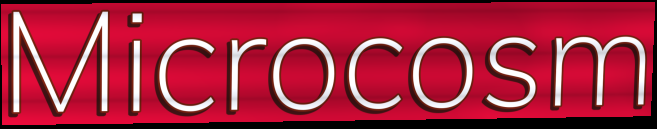
Microcosm